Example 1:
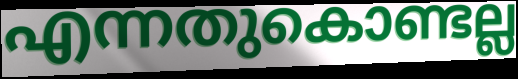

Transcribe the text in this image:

എന്നതുകൊണ്ടല്ല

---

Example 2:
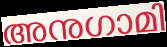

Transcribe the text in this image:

അനുഗാമി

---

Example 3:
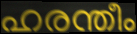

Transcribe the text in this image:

ഹരന്തീം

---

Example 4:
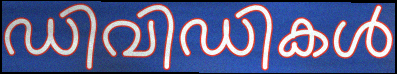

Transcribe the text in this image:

ഡിവിഡികൾ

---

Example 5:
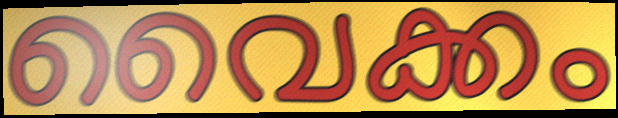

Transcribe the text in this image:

വൈക്കം